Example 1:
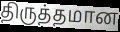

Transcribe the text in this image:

திருத்தமான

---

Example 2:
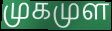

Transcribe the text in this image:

முகமுள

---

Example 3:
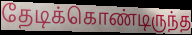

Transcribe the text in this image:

தேடிக்கொண்டிருந்த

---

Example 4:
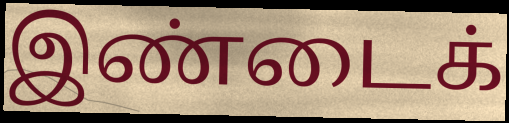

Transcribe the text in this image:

இண்டைக்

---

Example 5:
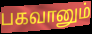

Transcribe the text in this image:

பகவானும்